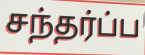
சந்தர்ப்ப